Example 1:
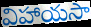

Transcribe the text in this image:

విహాయసా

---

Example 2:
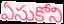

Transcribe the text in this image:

ఏసుకోని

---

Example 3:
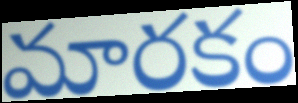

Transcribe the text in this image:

మారకం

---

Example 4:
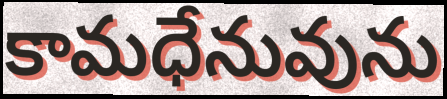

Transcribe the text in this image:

కామధేనువును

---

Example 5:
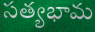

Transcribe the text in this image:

సత్యభామ